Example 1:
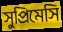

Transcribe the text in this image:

সুপ্রিমেসি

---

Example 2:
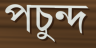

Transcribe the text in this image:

পচুন্দ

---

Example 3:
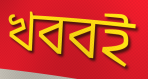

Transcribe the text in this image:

খববই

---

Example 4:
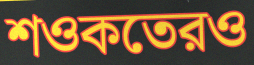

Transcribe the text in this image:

শওকতেরও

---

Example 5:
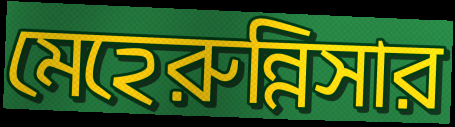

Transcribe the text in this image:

মেহেরুন্নিসার